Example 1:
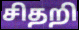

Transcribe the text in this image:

சிதறி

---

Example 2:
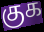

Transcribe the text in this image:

குக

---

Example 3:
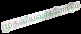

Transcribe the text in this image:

முதலியவர்களோடும்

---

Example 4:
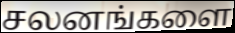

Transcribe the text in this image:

சலனங்களை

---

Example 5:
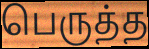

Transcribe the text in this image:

பெருத்த